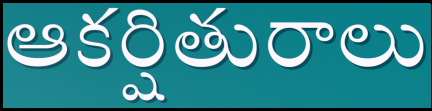
ఆకర్షితురాలు